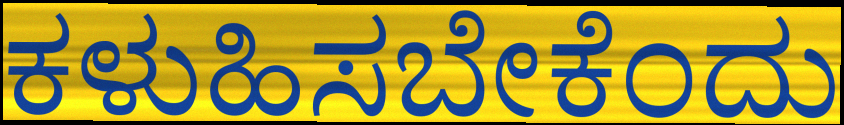
ಕಳುಹಿಸಬೇಕೆಂದು